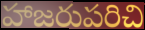
హాజరుపరిచి